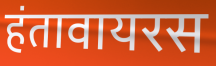
हंतावायरस